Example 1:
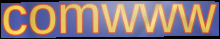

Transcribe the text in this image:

comwww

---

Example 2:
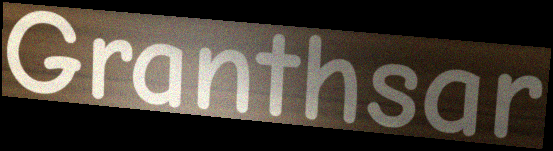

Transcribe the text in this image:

Granthsar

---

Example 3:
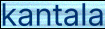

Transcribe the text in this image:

kantala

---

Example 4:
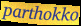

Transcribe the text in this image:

parthokko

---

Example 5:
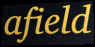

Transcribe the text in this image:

afield